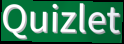
Quizlet